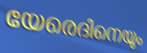
യേരെദിനെയും